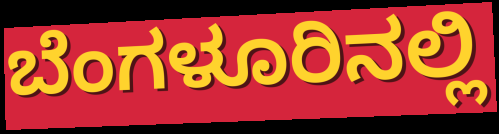
ಬೆಂಗಳೂರಿನಲ್ಲಿ